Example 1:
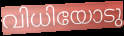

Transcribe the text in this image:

വിധിയോടു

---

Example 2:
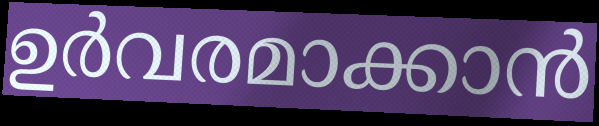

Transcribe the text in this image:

ഉർവരമാക്കാൻ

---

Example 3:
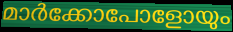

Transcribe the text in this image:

മാർക്കോപോളോയും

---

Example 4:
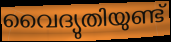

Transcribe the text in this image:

വൈദ്യുതിയുണ്ട്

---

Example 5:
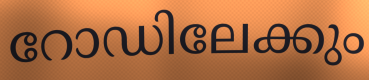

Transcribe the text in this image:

റോഡിലേക്കും